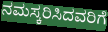
ನಮಸ್ಕರಿಸಿದವರಿಗೆ